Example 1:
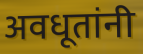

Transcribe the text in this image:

अवधूतांनी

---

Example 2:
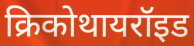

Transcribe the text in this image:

क्रिकोथायरॉइड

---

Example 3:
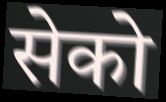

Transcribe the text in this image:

सेको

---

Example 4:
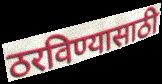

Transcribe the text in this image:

ठरविण्यासाठी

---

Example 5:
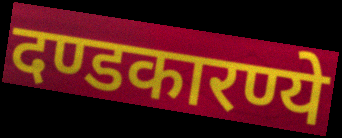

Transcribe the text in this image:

दण्डकारण्ये